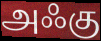
அஃகு